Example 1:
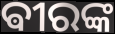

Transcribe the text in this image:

ଵୀରଙ୍କ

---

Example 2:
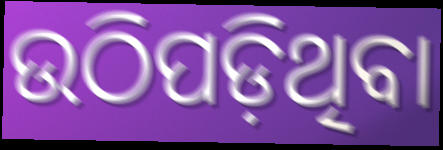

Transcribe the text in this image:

ଉଠିପଡ଼ିଥିବା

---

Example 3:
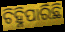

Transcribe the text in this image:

ଚିହ୍ନିପାରିଛି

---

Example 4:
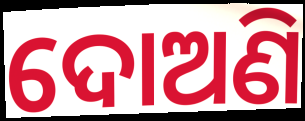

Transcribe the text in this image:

ଦୋଅଣି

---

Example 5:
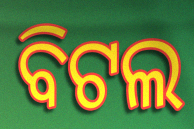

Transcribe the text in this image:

ବିଟଲ